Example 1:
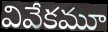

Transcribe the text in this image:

వివేకమూ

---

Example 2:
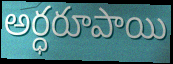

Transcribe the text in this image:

అర్ధరూపాయి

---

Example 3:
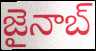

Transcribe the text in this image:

జైనాబ్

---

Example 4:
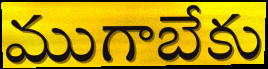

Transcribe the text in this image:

ముగాబేకు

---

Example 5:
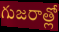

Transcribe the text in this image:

గుజరాత్లో